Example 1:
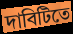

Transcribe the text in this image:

দাবিটিতে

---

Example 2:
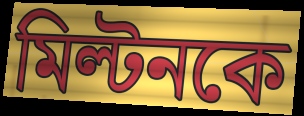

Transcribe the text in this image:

মিল্টনকে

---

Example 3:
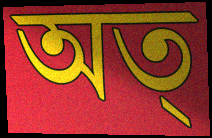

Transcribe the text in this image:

অত্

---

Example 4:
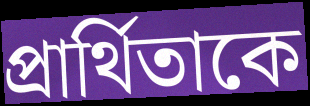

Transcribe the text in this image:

প্রার্থিতাকে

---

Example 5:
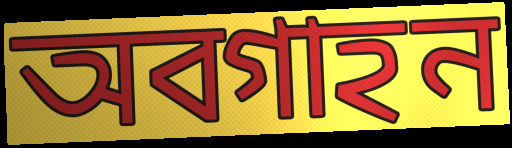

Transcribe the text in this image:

অবগাহন